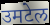
उमटेल